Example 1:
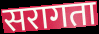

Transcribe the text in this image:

सरागता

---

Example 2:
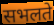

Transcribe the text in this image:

सभलते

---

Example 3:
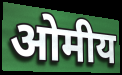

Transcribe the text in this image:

ओमीय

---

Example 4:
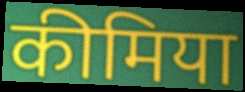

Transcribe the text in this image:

कीमिया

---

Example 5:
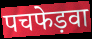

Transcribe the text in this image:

पचफेड़वा